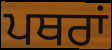
ਪਥਰਾਂ